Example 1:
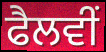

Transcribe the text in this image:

ਫੈਲਵੀਂ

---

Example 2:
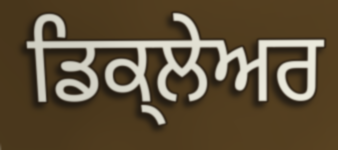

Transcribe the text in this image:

ਡਿਕ੍ਲੇਅਰ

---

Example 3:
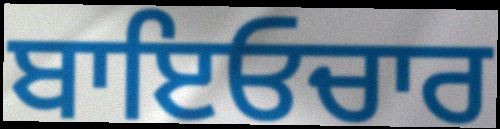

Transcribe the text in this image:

ਬਾਇਓਚਾਰ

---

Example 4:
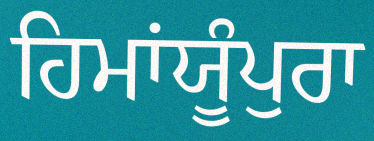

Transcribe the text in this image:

ਹਿਮਾਂਯੂੰਪੁਰਾ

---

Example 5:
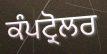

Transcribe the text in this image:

ਕੰਪਟ੍ਰੋਲਰ